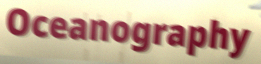
Oceanography